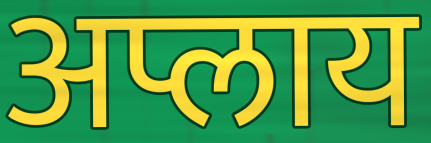
अप्लाय